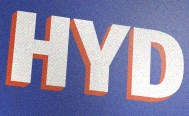
HYD